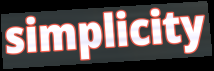
simplicity